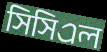
সিসিএল